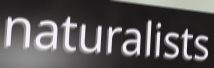
naturalists